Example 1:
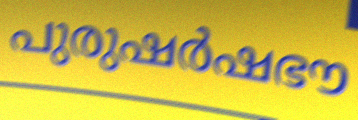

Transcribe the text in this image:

പുരുഷർഷഭൗ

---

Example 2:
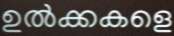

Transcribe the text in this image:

ഉൽക്കകളെ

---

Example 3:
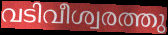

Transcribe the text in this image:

വടിവീശ്വരത്തു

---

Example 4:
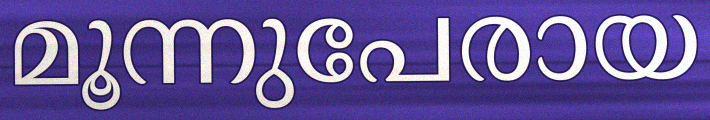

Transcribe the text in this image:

മൂന്നുപേരായ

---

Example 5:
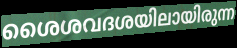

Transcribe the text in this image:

ശൈശവദശയിലായിരുന്ന